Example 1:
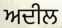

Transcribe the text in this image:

ਅਦੀਲ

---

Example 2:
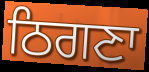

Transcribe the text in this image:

ਠਿਗਣਾ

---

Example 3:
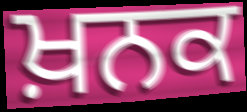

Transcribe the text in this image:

ਖ਼ਨਕ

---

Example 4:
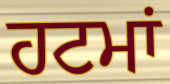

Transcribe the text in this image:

ਹਟਮਾਂ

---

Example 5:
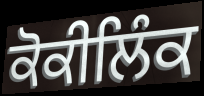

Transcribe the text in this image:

ਕੋਕੀਲਿੰਕ